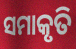
ସମାକୃତି